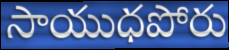
సాయుధపోరు